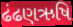
ઢંઢણઋષિ